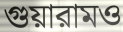
গুয়ারামও